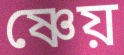
ষ্ণেয়